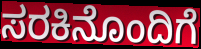
ಸರಕಿನೊಂದಿಗೆ